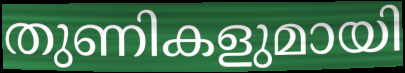
തുണികളുമായി